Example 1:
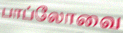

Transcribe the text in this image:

பாப்லோவை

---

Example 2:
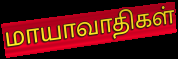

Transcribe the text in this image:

மாயாவாதிகள்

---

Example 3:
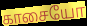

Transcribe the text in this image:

காசையோ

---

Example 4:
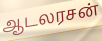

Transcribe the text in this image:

ஆடலரசன்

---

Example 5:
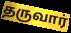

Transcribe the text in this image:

தருவார்